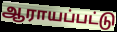
ஆராயப்பட்டு